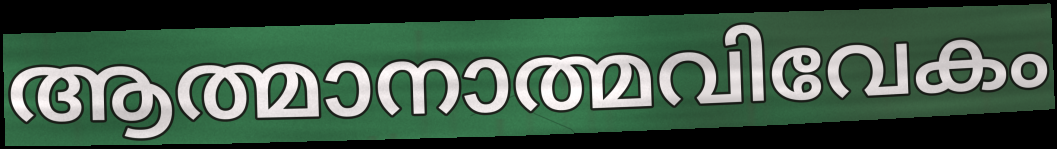
ആത്മാനാത്മവിവേകം